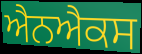
ਐਨਐਕਸ